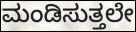
ಮಂಡಿಸುತ್ತಲೇ